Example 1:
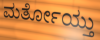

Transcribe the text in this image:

ಮರ್ತೋಯ್ತು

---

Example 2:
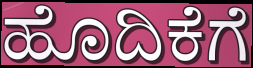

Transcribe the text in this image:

ಹೊದಿಕೆಗೆ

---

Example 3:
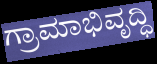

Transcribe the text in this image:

ಗ್ರಾಮಾಭಿವೃದ್ಧಿ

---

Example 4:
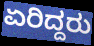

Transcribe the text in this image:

ಏರಿದ್ದರು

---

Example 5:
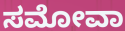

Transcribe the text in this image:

ಸಮೋವಾ